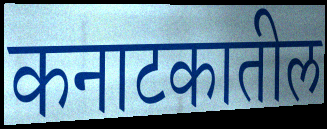
कनाटकातील